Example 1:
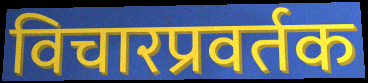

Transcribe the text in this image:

विचारप्रवर्तक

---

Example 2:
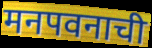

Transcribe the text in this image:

मनपवनाची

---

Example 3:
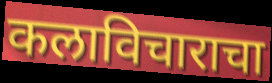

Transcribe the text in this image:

कलाविचाराचा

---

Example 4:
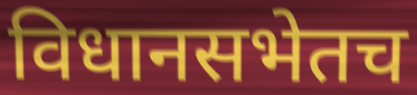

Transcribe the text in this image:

विधानसभेतच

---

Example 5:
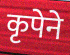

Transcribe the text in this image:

कृपेने